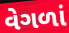
વેગળાં